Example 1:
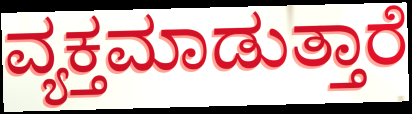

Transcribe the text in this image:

ವ್ಯಕ್ತಮಾಡುತ್ತಾರೆ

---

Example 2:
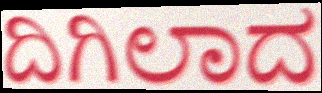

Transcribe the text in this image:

ದಿಗಿಲಾದ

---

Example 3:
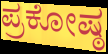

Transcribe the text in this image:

ಪ್ರಕೋಷ್ಠ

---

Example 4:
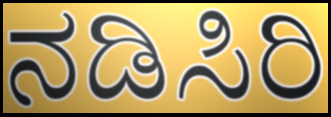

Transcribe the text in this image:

ನಡಿಸಿರಿ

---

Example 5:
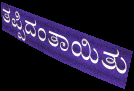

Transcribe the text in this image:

ತಪ್ಪಿದಂತಾಯಿತು